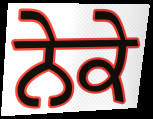
ਨੇਕੇ